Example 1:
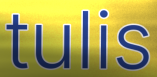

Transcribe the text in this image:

tulis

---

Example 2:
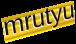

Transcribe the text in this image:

mrutyu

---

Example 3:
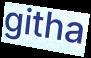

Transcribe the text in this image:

githa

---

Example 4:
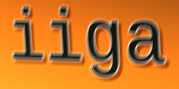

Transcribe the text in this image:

iiga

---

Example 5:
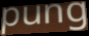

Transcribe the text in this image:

pung